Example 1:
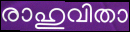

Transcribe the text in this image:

രാഹുവിതാ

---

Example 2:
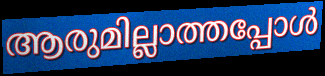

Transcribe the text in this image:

ആരുമില്ലാത്തപ്പോൾ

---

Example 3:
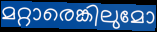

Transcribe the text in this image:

മറ്റാരെങ്കിലുമോ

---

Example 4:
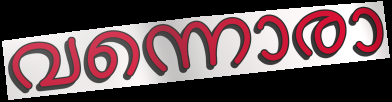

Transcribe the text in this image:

വന്നൊരാ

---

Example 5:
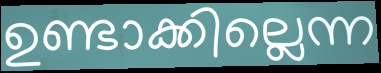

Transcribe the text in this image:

ഉണ്ടാക്കില്ലെന്ന